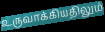
உருவாக்கியதிலும்